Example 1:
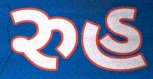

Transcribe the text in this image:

રુહ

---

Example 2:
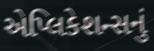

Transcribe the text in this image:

એપ્લિકેશન્સનું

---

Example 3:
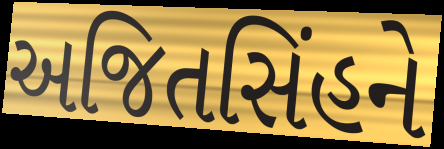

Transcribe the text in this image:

અજિતસિંહને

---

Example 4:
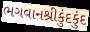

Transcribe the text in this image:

ભગવાનશ્રીકુંદકુંદ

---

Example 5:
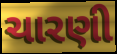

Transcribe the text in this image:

ચારણી